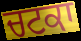
ਚਟਕਾ